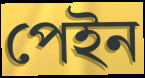
পেইন